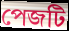
পেজটি